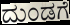
ದುಂಡಗೆ